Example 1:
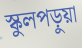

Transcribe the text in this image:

স্কুলপড়ুয়া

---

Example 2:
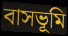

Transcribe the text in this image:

বাসভূমি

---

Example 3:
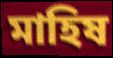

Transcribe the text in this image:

মাহিষ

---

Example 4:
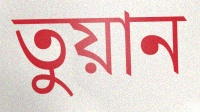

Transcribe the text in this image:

তুয়ান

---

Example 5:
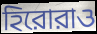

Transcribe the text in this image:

হিরোরাও